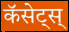
कॅसेट्स्